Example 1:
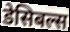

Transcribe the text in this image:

डेसिबल्स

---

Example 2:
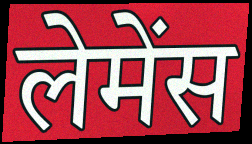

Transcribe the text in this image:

लेमेंस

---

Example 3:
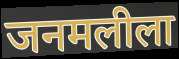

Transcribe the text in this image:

जनमलीला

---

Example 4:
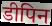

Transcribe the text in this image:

डीपिन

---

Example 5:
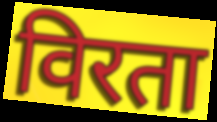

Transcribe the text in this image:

विरता